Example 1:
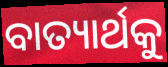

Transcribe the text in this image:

ବାତ୍ୟାର୍ଥକୁ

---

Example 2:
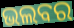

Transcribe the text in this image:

ଭଲବର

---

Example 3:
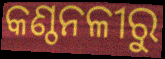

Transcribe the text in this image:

କଣ୍ଠନଳୀରୁ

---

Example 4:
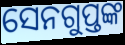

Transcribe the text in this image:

ସେନଗୁପ୍ତଙ୍କ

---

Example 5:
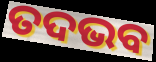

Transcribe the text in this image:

ତଦଭବ